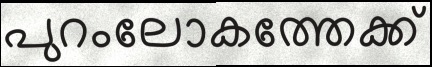
പുറംലോകത്തേക്ക്